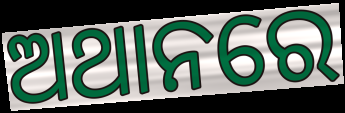
ଅଥାନରେ